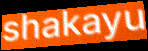
shakayu